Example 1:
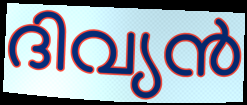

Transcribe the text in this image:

ദിവ്യൻ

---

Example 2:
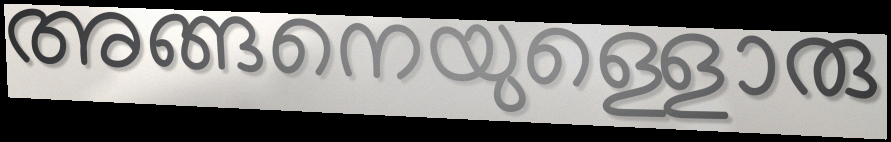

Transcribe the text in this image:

അങ്ങനെയുള്ളൊരു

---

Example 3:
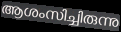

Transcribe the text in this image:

ആശംസിച്ചിരുന്നു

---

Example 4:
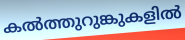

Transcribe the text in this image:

കൽത്തുറുങ്കുകളിൽ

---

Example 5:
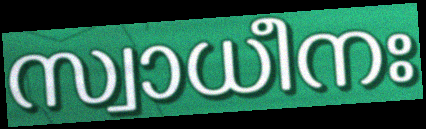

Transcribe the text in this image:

സ്വാധീനഃ